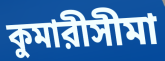
কুমারীসীমা